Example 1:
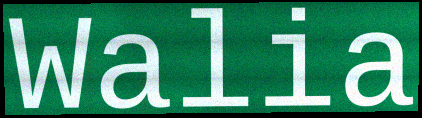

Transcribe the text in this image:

Walia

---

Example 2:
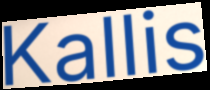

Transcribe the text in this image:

Kallis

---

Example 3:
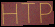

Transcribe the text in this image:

HTP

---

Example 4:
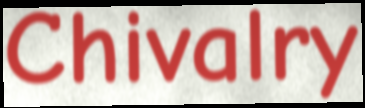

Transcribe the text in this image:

Chivalry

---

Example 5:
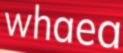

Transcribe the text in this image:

whaea